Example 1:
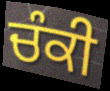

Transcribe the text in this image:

ਚੰਕੀ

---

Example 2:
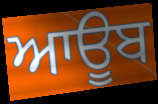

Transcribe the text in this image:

ਆਊਬ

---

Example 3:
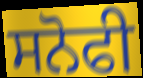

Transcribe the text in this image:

ਸਨੋਫੀ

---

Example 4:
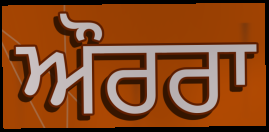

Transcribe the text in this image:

ਔਰਰਾ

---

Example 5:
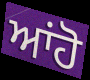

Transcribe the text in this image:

ਆਂਹੋ